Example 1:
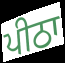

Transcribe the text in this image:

ਪੀਠਾ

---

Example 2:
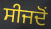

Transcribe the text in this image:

ਸੀਜਦੋਂ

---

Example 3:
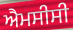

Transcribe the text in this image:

ਐਮਸੀਸੀ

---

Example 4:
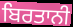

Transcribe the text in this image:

ਬਿਰਤਾਨੀ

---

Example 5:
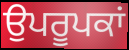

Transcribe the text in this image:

ਉਪਰੂਪਕਾਂ